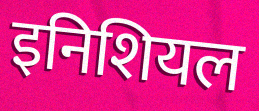
इनिशियल